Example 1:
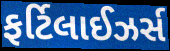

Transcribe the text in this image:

ફર્ટિલાઈઝર્સ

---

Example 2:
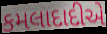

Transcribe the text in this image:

કમલાદાદીએ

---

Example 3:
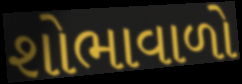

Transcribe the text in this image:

શોભાવાળો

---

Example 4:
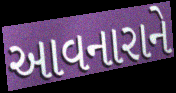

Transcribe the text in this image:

આવનારાને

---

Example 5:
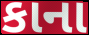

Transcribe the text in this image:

કાના